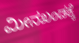
ಮೀನಖಂಡಕ್ಕೆ